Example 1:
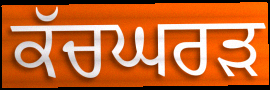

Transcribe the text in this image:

ਕੱਚਘਰੜ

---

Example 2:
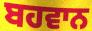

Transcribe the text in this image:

ਬਹਵਾਨ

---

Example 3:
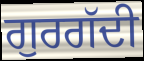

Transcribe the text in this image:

ਗੁਰਗੱਦੀ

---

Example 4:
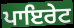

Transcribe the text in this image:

ਪਾਇਰੇਟ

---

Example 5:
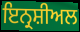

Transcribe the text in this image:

ਇਨ੍ਰਸ਼ੀਅਲ